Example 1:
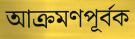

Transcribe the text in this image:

আক্রমণপূর্বক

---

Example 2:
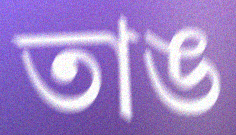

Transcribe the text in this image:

তাঙ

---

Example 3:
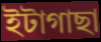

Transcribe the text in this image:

ইটাগাছা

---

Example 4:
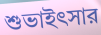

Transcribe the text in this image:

শুভাইৎসার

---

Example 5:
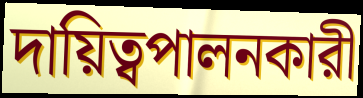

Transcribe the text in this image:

দায়িত্বপালনকারী